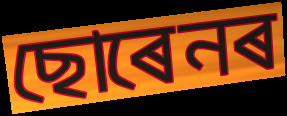
ছোৰেনৰ